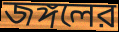
জঙ্গলের